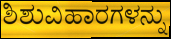
ಶಿಶುವಿಹಾರಗಳನ್ನು